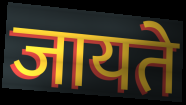
जायते